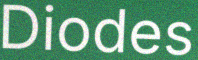
Diodes